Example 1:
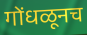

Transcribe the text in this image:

गोंधळूनच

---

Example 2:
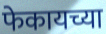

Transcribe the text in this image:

फेकायच्या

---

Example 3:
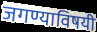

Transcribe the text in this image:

जगण्याविषयी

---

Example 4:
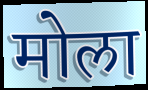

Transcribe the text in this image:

मोला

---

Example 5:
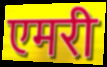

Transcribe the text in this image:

एमरी